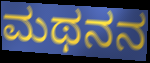
ಮಥನನ